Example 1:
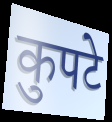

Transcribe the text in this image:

कुपटे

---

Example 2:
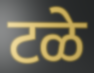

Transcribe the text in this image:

टळे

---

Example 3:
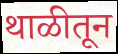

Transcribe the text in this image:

थाळीतून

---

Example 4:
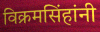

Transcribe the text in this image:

विक्रमसिंहांनी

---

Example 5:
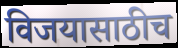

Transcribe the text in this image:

विजयासाठीच